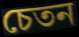
চেতন